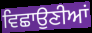
ਵਿਛਾਉਣੀਆਂ